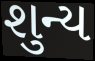
શુન્ય